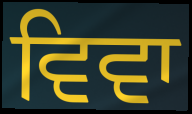
ਵਿਵਾ